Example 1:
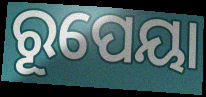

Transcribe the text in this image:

ରୂପେୟା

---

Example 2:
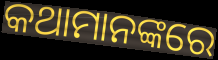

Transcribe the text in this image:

କଥାମାନଙ୍କରେ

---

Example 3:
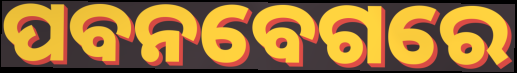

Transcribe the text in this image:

ପବନବେଗରେ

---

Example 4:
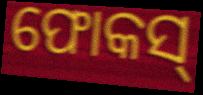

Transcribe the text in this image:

ଫୋକସ୍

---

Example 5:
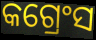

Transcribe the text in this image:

କଗ୍ରେଂସ